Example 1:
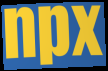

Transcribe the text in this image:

npx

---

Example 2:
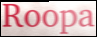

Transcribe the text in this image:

Roopa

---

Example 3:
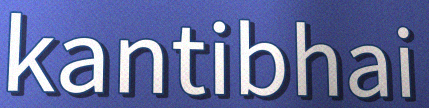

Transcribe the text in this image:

kantibhai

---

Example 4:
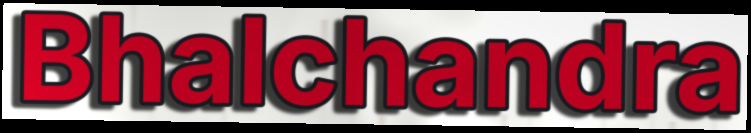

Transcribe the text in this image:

Bhalchandra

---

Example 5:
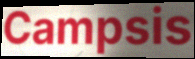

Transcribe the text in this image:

Campsis